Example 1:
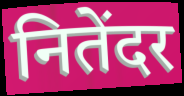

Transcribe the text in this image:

नितेंदर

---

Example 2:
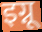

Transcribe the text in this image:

इग्नू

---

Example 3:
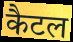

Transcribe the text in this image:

कैटल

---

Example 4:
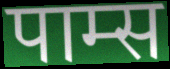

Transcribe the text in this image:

पाम्स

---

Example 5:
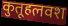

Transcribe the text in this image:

कुतूहलवश